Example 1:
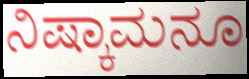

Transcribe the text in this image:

ನಿಷ್ಕಾಮನೂ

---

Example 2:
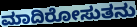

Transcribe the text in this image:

ಮಾದಿರೋಸುತನು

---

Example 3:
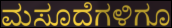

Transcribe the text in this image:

ಮಸೂದೆಗಳಿಗೂ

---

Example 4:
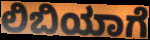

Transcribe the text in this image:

ಲಿಬಿಯಾಗೆ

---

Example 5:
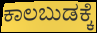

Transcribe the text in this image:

ಕಾಲಬುಡಕ್ಕೆ